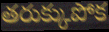
తరుక్కుపోక